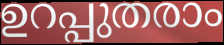
ഉറപ്പുതരാം